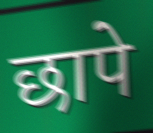
छापे